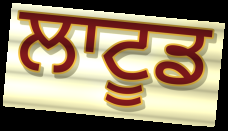
ਲਾਟੂਡ